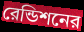
রেন্ডিশনের